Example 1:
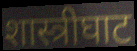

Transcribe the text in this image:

शास्त्रीघाट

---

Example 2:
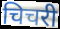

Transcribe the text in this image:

चिचरी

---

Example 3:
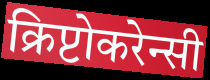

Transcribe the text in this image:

क्रिप्टोकरेन्सी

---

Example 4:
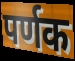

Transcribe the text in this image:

पर्णक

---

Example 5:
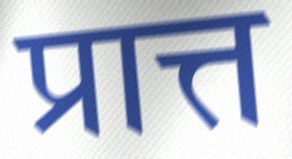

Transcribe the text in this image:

प्रात्त